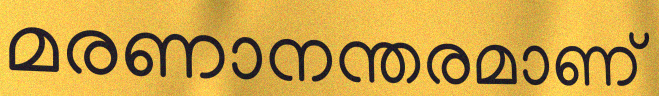
മരണാനന്തരമാണ്